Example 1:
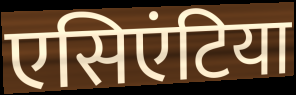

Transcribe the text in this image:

एसिएंटिया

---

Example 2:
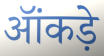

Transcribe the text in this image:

ऑंकड़े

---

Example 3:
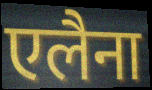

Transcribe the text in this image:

एलैना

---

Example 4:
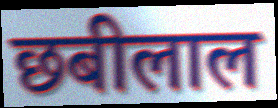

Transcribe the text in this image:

छबीलाल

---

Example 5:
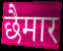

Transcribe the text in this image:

छैमार